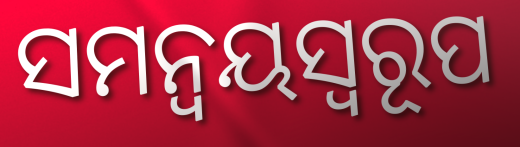
ସମନ୍ୱୟସ୍ୱରୂପ